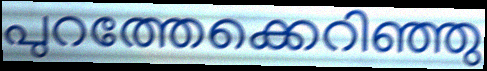
പുറത്തേക്കെറിഞ്ഞു